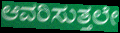
ಆವರಿಸುತ್ತಲೇ